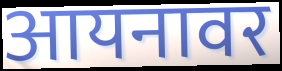
आयनावर